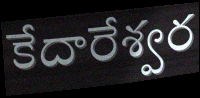
కేదారేశ్వర